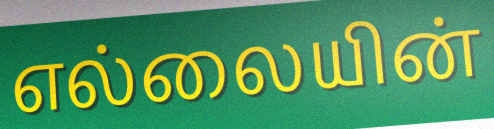
எல்லையின்